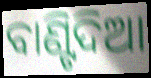
ବାଣ୍ଟିଦିଆ